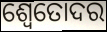
ଶ୍ୱେତୋଦର